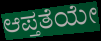
ಆಪ್ತತೆಯೇ